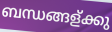
ബന്ധങ്ങള്ക്കു